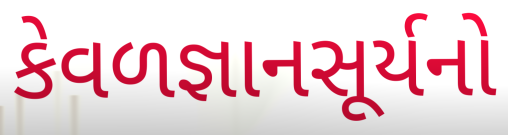
કેવળજ્ઞાનસૂર્યનો